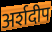
अर्शदीप